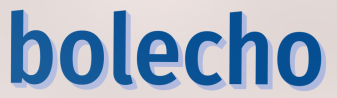
bolecho